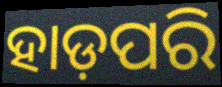
ହାଡ଼ପରି